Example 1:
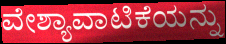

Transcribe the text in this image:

ವೇಶ್ಯಾವಾಟಿಕೆಯನ್ನು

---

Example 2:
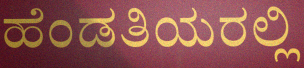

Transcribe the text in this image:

ಹೆಂಡತಿಯರಲ್ಲಿ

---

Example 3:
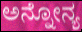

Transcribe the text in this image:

ಅನ್ನೋನ್ಯ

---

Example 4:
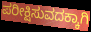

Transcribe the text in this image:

ಪರೀಕ್ಷಿಸುವದಕ್ಕಾಗಿ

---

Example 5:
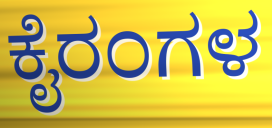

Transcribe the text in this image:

ಕೈರಂಗಳ